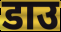
डाउ